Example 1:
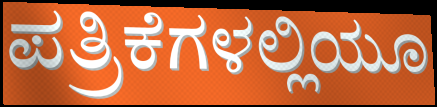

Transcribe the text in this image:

ಪತ್ರಿಕೆಗಳಲ್ಲಿಯೂ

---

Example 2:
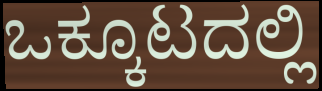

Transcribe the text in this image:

ಒಕ್ಕೂಟದಲ್ಲಿ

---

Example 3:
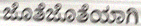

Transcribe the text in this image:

ಜೊತೆಜೊತೆಯಾಗಿ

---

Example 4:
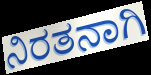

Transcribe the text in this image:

ನಿರತನಾಗಿ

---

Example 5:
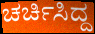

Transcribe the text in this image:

ಚರ್ಚಿಸಿದ್ದ